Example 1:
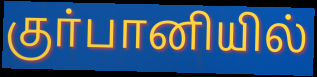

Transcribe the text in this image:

குர்பானியில்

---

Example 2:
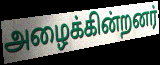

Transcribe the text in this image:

அழைக்கின்றனர்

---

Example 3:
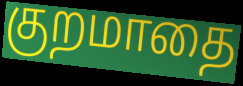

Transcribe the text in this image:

குறமாதை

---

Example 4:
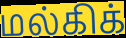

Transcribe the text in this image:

மல்கிக்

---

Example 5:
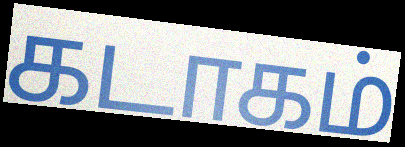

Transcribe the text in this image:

கடாகம்